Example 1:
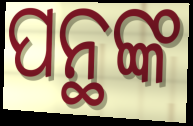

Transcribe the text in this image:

ପନ୍ଥଙ୍କ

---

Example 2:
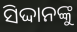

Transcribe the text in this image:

ସିଦ୍ଦାନଙ୍କୁ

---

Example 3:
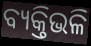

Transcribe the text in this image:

ବ୍ୟକ୍ତିଭଳି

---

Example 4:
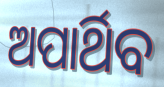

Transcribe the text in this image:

ଅପାର୍ଥିବ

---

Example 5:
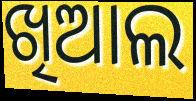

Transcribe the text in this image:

ଖିଆଲ